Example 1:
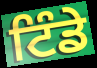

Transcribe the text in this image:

ਟਿੰਡੇ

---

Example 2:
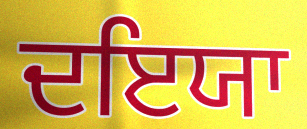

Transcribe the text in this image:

ਦਇਯਾ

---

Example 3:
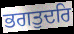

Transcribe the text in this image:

ਭਗਤੁਦਰਿ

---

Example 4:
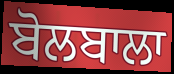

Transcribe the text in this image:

ਬੋਲਬਾਲਾ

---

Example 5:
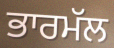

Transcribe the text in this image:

ਭਾਰਮੱਲ